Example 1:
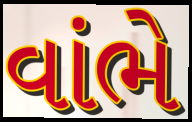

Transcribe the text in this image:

વાંભે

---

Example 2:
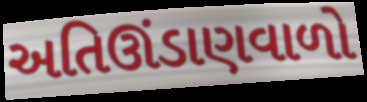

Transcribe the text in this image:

અતિઊંડાણવાળો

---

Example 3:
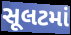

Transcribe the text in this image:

સૂલટમાં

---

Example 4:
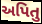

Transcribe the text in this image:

અપિતુ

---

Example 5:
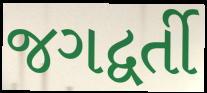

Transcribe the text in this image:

જગદ્વર્તી